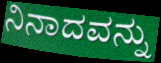
ನಿನಾದವನ್ನು